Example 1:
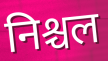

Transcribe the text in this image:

निश्चल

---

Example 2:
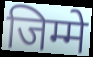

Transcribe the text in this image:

जिम्मे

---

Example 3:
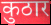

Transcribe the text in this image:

कुठार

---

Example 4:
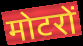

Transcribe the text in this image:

मोटरों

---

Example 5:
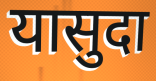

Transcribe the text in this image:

यासुदा